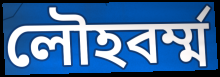
লৌহবর্ম্ম